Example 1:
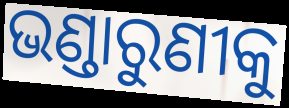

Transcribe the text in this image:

ଭଣ୍ଡାରୁଣୀକୁ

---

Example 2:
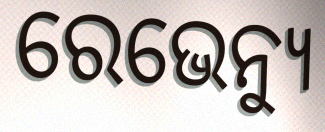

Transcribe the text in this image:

ରେଭେନ୍ୟୁ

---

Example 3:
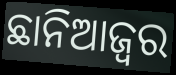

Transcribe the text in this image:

ଛାନିଆଜ୍ୱର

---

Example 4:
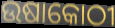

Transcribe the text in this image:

ଉଷାକୋଠୀ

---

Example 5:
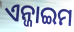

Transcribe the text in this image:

ଏନ୍ଜାଇମ